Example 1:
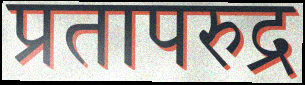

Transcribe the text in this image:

प्रतापरुद्र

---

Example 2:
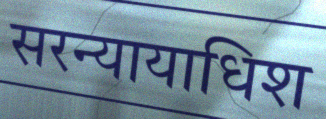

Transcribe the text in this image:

सरन्यायाधिश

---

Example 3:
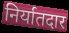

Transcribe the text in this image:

निर्यातदार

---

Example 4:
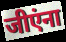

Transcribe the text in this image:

जीएंना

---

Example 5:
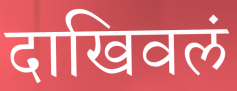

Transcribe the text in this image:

दाखिवलं